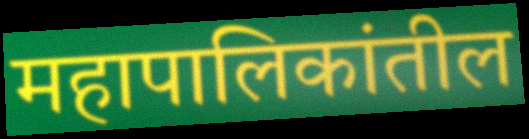
महापालिकांतील